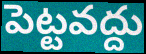
పెట్టవద్దు